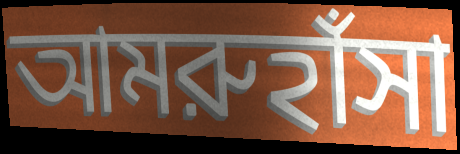
আমরুহাঁসা